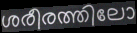
ശരീരത്തിലോ